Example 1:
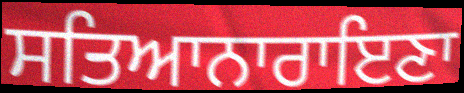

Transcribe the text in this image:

ਸਤਿਆਨਾਰਾਇਣਾ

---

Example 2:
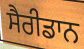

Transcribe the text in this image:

ਸੈਰੀਡਾਨ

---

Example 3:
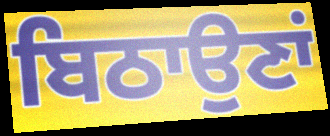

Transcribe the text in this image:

ਬਿਠਾਉਣਾਂ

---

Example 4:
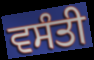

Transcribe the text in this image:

ਵਸੰਤੀ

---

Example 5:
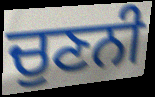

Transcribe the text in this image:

ਚੁਣਨੀ